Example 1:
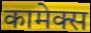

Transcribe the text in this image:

कामेक्स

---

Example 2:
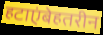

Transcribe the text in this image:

हटाएंबेहतरीन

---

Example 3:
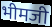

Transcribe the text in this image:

भीमजी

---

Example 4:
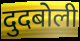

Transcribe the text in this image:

दुदबोली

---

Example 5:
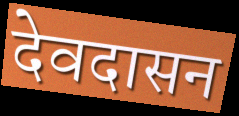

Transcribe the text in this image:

देवदासन